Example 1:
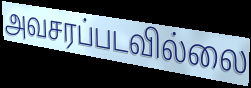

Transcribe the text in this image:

அவசரப்படவில்லை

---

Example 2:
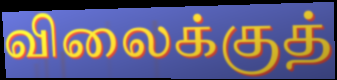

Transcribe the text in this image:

விலைக்குத்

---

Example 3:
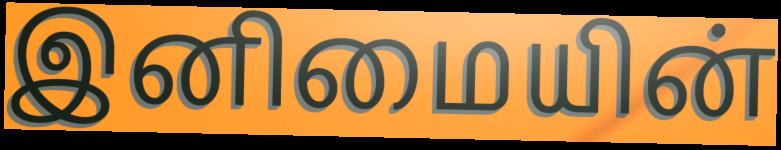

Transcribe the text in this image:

இனிமையின்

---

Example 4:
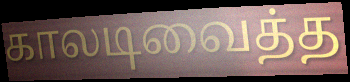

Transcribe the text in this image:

காலடிவைத்த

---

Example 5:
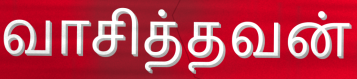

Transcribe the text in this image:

வாசித்தவன்